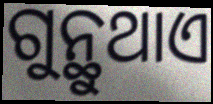
ଗୁନ୍ଥୁଥାଏ